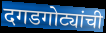
दगडगोट्यांची